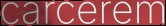
carcerem